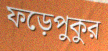
ফড়েপুকুর